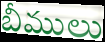
బీములు